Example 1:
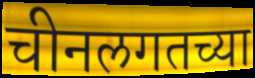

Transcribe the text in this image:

चीनलगतच्या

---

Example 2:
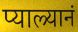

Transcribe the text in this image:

प्याल्यानं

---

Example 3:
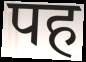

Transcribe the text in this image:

पह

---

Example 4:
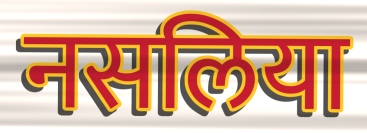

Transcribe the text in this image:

नसलिया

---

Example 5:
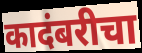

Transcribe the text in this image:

कादंबरीचा